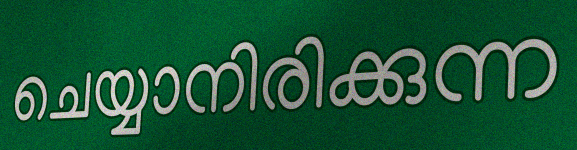
ചെയ്യാനിരിക്കുന്ന